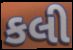
કલી